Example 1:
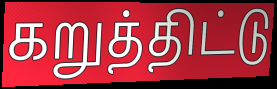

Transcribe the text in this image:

கறுத்திட்டு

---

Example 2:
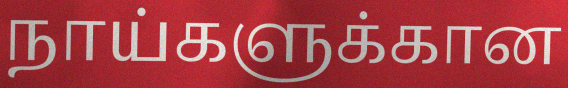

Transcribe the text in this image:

நாய்களுக்கான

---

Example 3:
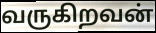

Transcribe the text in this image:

வருகிறவன்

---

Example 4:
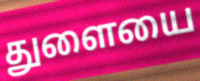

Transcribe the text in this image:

துளையை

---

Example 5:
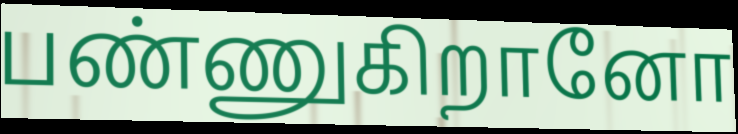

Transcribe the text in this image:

பண்ணுகிறானோ